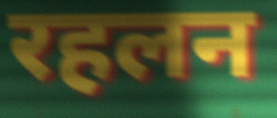
रहलन